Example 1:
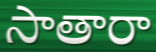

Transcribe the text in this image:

సాతారా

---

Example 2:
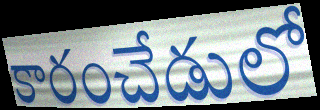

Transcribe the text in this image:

కారంచేడులో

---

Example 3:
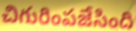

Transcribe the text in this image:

చిగురింపజేసింది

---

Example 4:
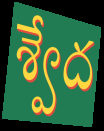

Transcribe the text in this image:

శ్వేద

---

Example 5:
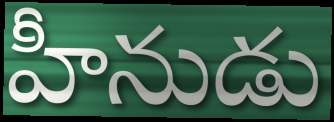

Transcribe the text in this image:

హీనుడు